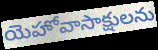
యెహోవాసాక్షులను